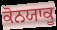
ਕੋਨਯਾਕੂ